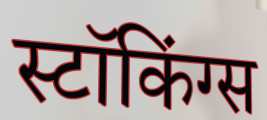
स्टॉकिंग्स